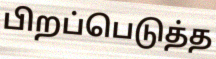
பிறப்பெடுத்த